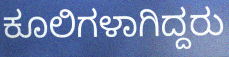
ಕೂಲಿಗಳಾಗಿದ್ದರು